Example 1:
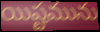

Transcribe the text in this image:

యిష్టమును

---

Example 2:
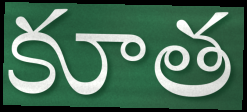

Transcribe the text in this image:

కూత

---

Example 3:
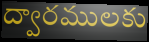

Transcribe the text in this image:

ద్వారములకు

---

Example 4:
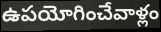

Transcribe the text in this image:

ఉపయోగించేవాళ్లం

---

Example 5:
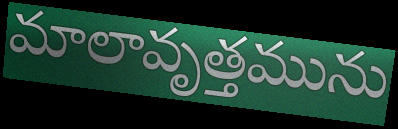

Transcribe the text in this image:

మాలావృత్తమును